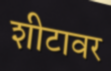
शीटावर